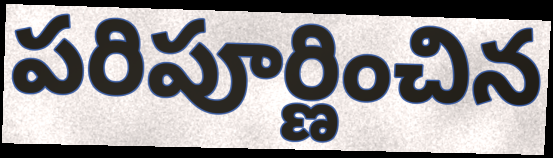
పరిపూర్ణించిన